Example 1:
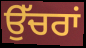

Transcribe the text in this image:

ਉੱਚਰਾਂ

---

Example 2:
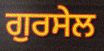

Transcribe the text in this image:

ਗੁਰਸੇਲ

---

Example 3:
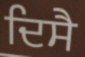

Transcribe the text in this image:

ਦਿਸੈ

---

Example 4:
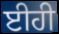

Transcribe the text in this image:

ਈਹੀ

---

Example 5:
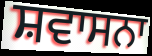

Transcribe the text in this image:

ਸ਼ਵਾਸਨਾ